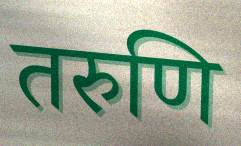
तरुणि